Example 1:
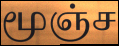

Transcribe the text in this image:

மூஞ்ச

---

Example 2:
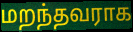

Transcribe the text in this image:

மறந்தவராக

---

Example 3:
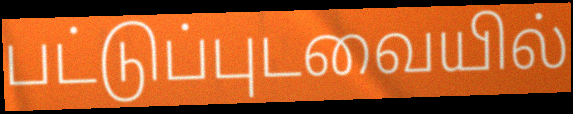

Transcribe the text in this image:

பட்டுப்புடவையில்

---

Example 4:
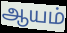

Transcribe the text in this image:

ஆயம்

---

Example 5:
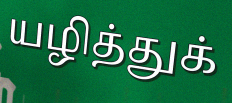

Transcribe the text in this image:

யழித்துக்